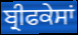
ਬ੍ਰੀਫਕੇਸਾਂ